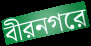
বীরনগরে